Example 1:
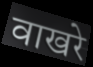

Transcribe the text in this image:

वाखरे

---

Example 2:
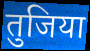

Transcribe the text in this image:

तुजिया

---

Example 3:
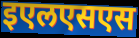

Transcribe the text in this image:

इएलएसएस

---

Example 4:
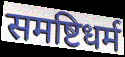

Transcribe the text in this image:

समष्टिधर्म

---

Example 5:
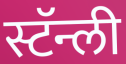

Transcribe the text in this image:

स्टॅन्ली